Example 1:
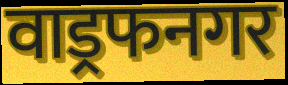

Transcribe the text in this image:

वाड्रफनगर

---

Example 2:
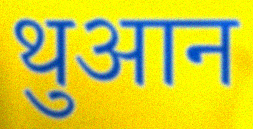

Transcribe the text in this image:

थुआन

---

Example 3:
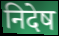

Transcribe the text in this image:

निदेष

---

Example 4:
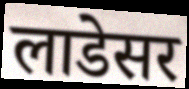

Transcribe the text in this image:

लाडेसर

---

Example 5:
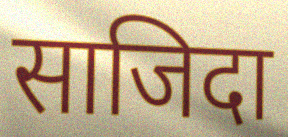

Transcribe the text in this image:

साजिदा